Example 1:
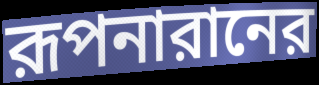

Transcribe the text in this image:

রূপনারানের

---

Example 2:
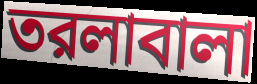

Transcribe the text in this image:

তরলাবালা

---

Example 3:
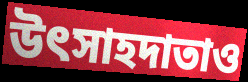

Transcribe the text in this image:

উৎসাহদাতাও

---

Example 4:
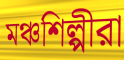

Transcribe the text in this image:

মঞ্চশিল্পীরা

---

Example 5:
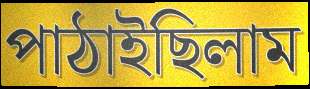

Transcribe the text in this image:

পাঠাইছিলাম